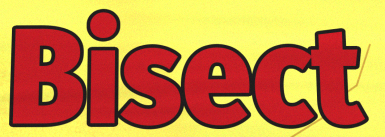
Bisect